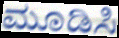
ಮೂಡಿಸಿ